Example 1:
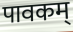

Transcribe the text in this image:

पावकम्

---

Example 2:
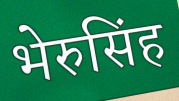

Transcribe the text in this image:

भेरुसिंह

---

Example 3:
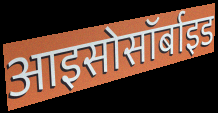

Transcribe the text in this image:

आइसोसॉर्बाइड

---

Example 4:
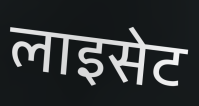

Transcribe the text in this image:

लाइसेट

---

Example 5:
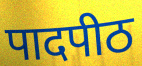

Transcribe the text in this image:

पादपीठ